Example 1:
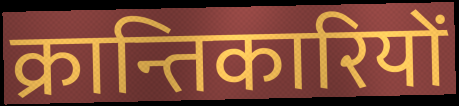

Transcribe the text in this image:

क्रान्तिकारियों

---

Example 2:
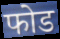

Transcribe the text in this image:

फोड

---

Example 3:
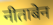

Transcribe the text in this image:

नीताबेन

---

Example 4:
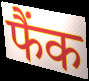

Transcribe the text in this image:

फैंक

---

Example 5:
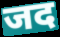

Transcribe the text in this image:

जद